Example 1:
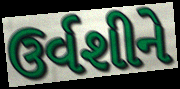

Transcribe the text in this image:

ઉર્વશીને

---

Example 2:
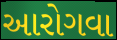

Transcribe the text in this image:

આરોગવા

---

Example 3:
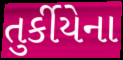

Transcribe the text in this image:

તુર્કીયેના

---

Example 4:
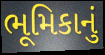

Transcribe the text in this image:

ભૂમિકાનું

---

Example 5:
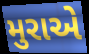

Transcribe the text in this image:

મુરાએ